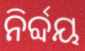
ନିର୍ବ୍ଦୟ